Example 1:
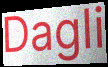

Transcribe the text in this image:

Dagli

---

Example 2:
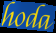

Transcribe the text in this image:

hoda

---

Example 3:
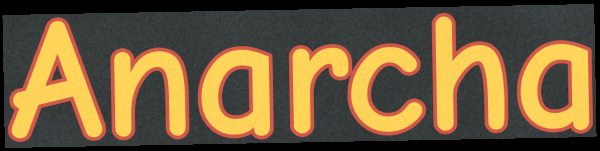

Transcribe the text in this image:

Anarcha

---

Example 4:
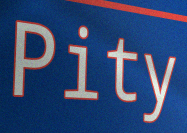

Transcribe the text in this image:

Pity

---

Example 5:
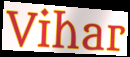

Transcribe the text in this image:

Vihar